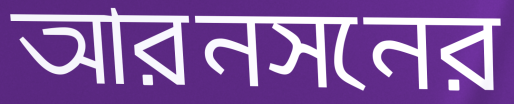
আরনসনের